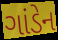
ગાંડેન